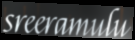
sreeramulu